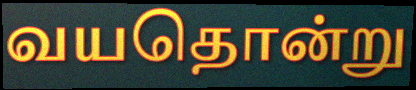
வயதொன்று